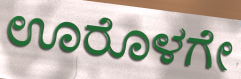
ಊರೊಳಗೇ